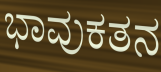
ಭಾವುಕತನ